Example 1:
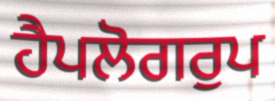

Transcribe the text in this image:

ਹੈਪਲੋਗਰੁਪ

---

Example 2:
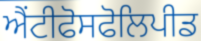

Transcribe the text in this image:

ਐਂਟੀਫੋਸਫੋਲਿਪੀਡ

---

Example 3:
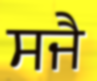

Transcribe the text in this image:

ਸਜੈ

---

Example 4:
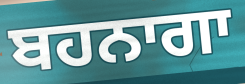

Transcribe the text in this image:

ਬਹਨਾਗਾ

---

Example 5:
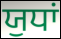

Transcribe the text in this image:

ਯੁਧਾਂ